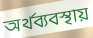
অর্থব্যবস্থায়